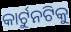
କାର୍ଟୁନଟିକୁ